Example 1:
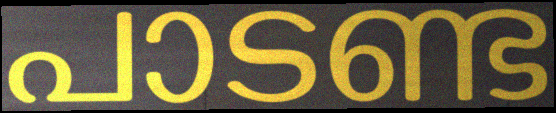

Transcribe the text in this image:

പാടണ്ട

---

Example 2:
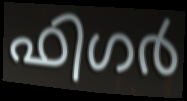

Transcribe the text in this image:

ഫിഗർ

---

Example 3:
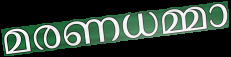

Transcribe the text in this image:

മരണധമ്മാ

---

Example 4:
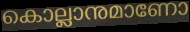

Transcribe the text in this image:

കൊല്ലാനുമാണോ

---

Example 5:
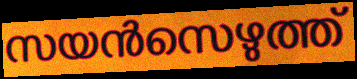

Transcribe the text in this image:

സയൻസെഴുത്ത്